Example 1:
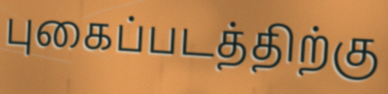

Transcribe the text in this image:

புகைப்படத்திற்கு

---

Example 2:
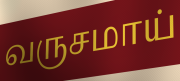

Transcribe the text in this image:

வருசமாய்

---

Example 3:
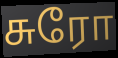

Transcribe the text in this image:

சுரோ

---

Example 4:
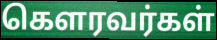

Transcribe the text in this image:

கௌரவர்கள்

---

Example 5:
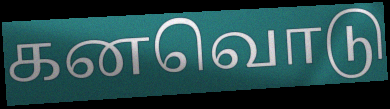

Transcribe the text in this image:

கனவொடு